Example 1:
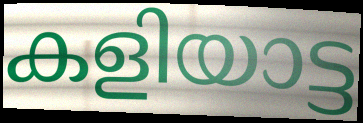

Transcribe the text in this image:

കളിയാട്ട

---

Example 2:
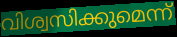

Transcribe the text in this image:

വിശ്വസിക്കുമെന്ന്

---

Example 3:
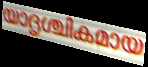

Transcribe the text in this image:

യാദൃശ്ചികമായ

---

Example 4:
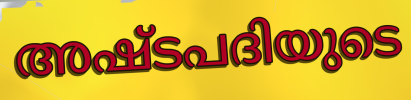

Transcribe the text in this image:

അഷ്ടപദിയുടെ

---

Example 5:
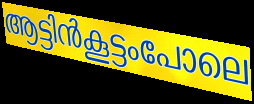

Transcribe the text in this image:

ആട്ടിൻകൂട്ടംപോലെ